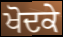
ਖੋਦਕੇ